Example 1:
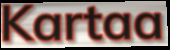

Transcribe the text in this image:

Kartaa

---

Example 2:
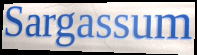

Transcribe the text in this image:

Sargassum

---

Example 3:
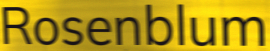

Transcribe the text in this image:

Rosenblum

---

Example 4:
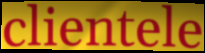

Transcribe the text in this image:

clientele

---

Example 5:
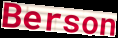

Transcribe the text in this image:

Berson